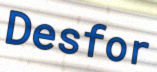
Desfor